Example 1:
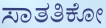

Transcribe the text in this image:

ಸಾತತಿಕೋ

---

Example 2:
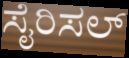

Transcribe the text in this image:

ಸೈರಿಸಲ್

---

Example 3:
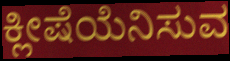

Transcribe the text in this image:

ಕ್ಲೀಷೆಯೆನಿಸುವ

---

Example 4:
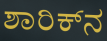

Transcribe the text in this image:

ಶಾರಿಕ್‌ನ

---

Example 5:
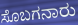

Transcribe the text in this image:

ಸೊಬಗನಾರು